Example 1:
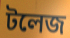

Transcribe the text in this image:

টলেজ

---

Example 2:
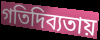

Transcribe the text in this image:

গতিদিব্যতায়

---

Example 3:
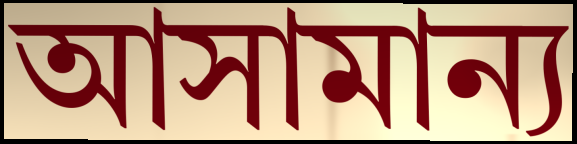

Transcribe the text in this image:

আসামান্য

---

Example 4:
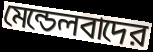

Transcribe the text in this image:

মেন্ডেলবাদের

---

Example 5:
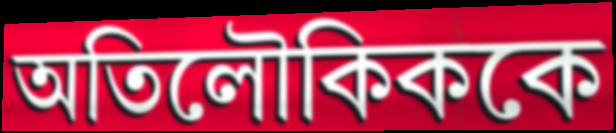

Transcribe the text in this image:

অতিলৌকিককে